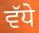
ਵੱਧੇ